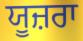
ਯੂਜ਼ਰਾ